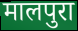
मालपुरा